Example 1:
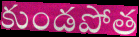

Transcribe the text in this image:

కుండపోత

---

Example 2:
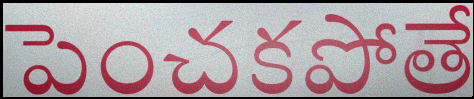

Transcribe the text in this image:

పెంచకపోతే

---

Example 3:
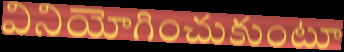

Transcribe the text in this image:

వినియోగించుకుంటూ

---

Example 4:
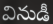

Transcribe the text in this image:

వినుడీ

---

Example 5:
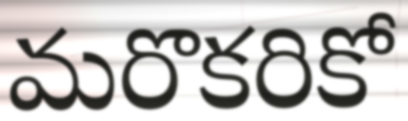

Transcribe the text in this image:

మరొకరికో